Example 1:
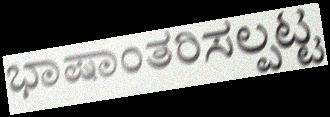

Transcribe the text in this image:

ಭಾಷಾಂತರಿಸಲ್ಪಟ್ಟ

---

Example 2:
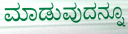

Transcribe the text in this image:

ಮಾಡುವುದನ್ನೂ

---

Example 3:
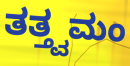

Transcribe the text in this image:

ತತ್ತ್ವಮಂ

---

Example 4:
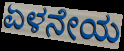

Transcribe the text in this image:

ಏಳನೇಯ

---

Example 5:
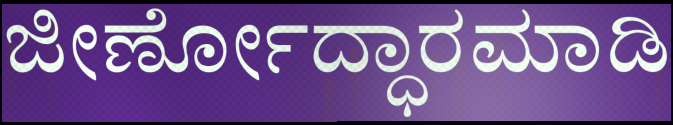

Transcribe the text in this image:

ಜೀರ್ಣೋದ್ಧಾರಮಾಡಿ